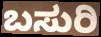
ಬಸುರಿ